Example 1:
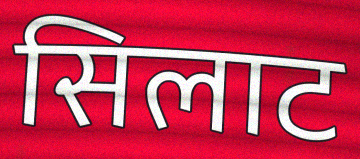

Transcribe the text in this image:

सिलाट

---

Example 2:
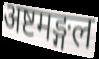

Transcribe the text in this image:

अष्टमङ्गल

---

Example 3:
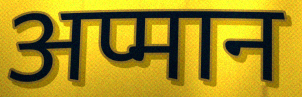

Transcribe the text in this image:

अप्मान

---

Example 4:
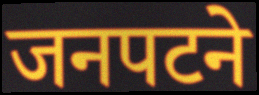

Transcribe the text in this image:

जनपटने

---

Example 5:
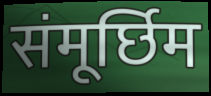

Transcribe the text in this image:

संमूर्छिम